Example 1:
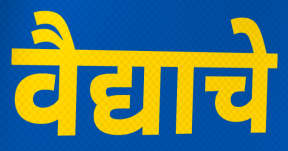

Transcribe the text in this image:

वैद्याचे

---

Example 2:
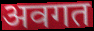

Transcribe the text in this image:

अवगत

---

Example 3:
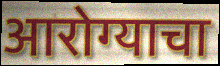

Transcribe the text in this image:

आरोग्याचा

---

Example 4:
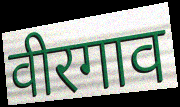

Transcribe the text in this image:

वीरगाव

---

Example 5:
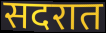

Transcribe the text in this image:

सदरात